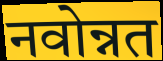
नवोन्नत